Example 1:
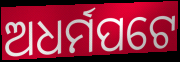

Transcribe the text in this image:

ଅଧର୍ମପଟେ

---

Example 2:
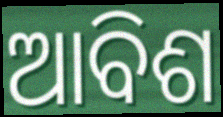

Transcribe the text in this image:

ଆବିଶ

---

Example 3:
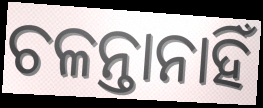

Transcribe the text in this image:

ଚଳନ୍ତାନାହିଁ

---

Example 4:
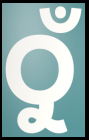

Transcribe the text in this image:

ଠୁଁ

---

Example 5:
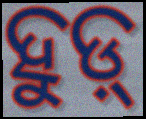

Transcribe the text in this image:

ହୁଡ଼୍